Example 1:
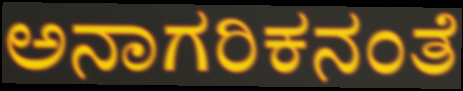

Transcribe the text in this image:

ಅನಾಗರಿಕನಂತೆ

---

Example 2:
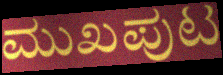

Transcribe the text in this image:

ಮುಖಪುಟ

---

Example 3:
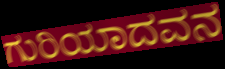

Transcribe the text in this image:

ಗುರಿಯಾದವನ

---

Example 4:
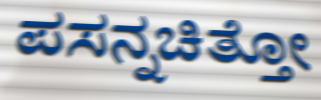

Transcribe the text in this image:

ಪಸನ್ನಚಿತ್ತೋ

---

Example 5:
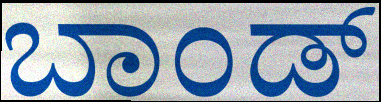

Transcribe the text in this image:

ಬಾಂಡ್